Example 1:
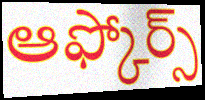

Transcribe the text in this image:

ఆఫ్కోర్స్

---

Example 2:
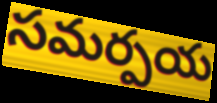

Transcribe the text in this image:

సమర్పయ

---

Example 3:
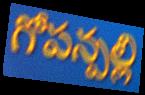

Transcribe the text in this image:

గోపన్పల్లి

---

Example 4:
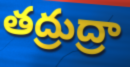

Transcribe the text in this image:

తద్రుద్రా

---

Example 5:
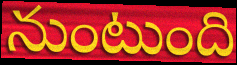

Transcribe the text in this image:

నుంటుంది